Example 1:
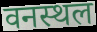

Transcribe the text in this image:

वनस्थल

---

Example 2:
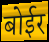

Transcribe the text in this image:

बोईर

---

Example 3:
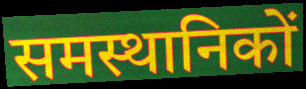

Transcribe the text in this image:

समस्थानिकों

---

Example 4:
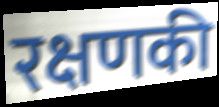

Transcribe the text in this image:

रक्षणकी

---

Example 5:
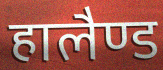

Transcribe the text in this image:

हालैण्ड